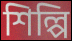
শিল্পি